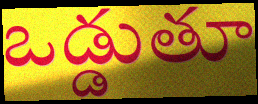
ఒడ్డుతూ